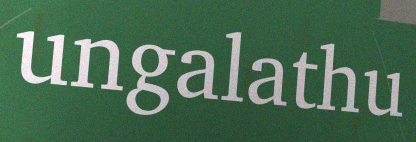
ungalathu